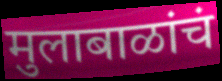
मुलाबाळांचं